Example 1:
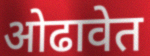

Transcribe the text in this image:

ओढावेत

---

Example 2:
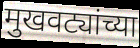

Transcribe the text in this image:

मुखवट्यांच्या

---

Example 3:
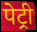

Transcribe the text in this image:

पेट्री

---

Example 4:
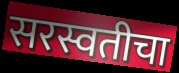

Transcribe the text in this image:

सरस्वतीचा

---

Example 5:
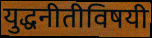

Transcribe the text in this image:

युद्धनीतीविषयी